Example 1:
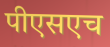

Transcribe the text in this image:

पीएसएच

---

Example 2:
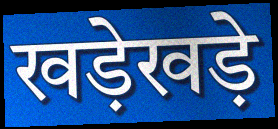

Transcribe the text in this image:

खड़ेखड़े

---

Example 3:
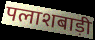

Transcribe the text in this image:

पलाशबाड़ी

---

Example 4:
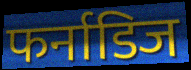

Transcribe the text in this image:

फर्नाडिज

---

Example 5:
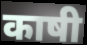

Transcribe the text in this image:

काषी